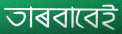
তাৰবাবেই